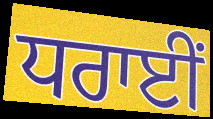
ਧਰਾਈਂ